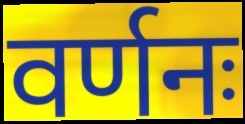
वर्णनः